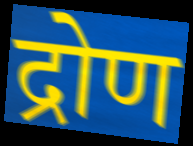
द्रोण